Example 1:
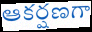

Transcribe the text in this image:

ఆకర్షణగా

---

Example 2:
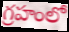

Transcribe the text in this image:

గ్రహంలో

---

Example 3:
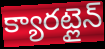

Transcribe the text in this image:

క్యారట్లైన్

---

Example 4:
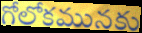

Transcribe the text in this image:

గోలోకమునకు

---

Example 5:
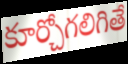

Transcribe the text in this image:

కూర్చోగలిగితే